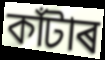
কাঁটাৰ